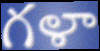
గళా